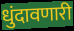
धुंदावणारी